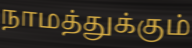
நாமத்துக்கும்